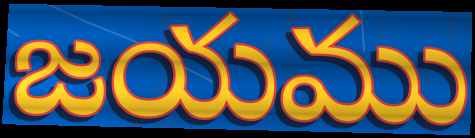
జయము